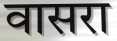
वासरा